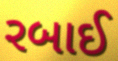
રબાઈ